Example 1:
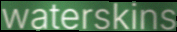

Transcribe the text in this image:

waterskins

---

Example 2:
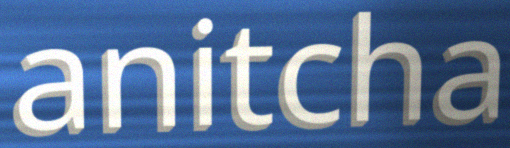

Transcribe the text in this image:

anitcha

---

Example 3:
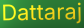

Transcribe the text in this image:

Dattaraj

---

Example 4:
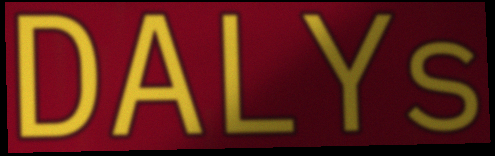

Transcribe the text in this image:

DALYs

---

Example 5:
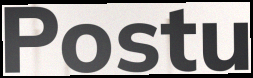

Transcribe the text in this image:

Postu